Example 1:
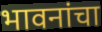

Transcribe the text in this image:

भावनांचा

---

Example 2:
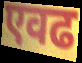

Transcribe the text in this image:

एवढ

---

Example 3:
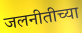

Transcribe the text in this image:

जलनीतीच्या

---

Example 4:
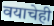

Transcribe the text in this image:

वयाचेही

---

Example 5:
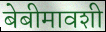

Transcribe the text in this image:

बेबीमावशी